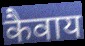
कैवाय